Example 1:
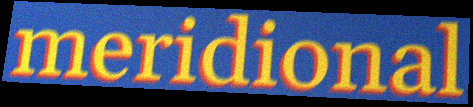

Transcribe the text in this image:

meridional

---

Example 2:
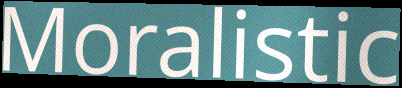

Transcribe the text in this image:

Moralistic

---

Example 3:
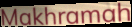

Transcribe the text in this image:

Makhramah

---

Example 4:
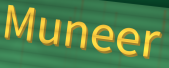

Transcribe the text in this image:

Muneer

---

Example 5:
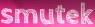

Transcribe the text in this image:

smutek